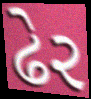
ઢેર